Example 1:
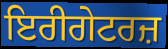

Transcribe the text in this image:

ਇਰੀਗੇਟਰਜ਼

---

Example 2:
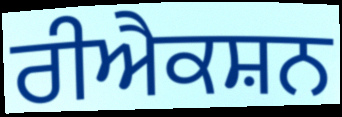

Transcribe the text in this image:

ਰੀਐਕਸ਼ਨ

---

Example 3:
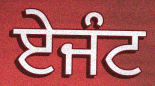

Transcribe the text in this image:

ਏਜੰਟ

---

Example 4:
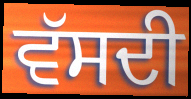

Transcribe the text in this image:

ਵੱਸਦੀ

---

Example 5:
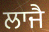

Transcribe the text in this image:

ਲਾਜੈ